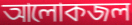
আলোকজল